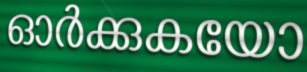
ഓർക്കുകയോ